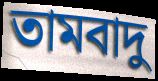
তামবাদু